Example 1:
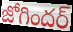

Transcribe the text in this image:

జోగిందర్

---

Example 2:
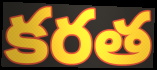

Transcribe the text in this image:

కరత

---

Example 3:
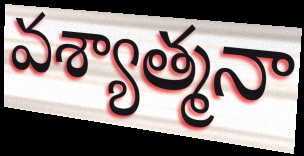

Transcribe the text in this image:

వశ్యాత్మనా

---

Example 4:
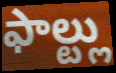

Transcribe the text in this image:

ఫాల్ట్లు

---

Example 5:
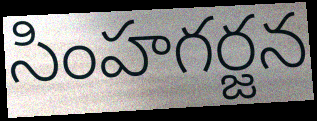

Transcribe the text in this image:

సింహగర్జన